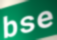
bse